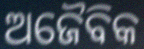
ଅଜୈବିକ